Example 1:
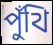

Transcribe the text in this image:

পুঁথি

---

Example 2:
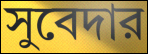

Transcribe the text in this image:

সুবেদার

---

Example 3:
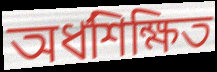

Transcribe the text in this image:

অর্ধশিক্ষিত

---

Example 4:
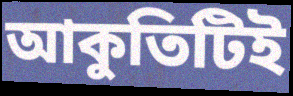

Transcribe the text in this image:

আকুতিটিই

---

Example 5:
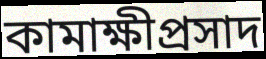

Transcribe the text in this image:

কামাক্ষীপ্রসাদ